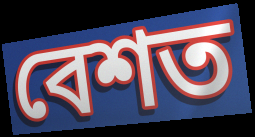
বেশত